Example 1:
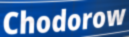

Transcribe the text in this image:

Chodorow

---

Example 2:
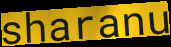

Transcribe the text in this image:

sharanu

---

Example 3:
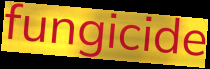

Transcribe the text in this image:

fungicide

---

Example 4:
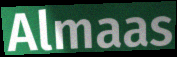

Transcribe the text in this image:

Almaas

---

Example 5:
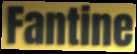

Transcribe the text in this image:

Fantine